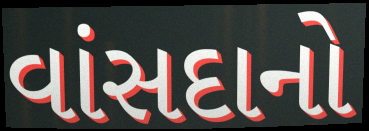
વાંસદાનો